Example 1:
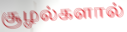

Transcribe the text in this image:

சூழல்களால்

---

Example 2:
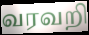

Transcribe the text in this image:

வரவறி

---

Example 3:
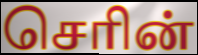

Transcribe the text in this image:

செரின்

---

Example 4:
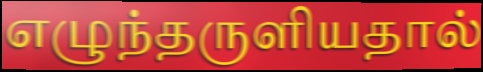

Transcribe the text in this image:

எழுந்தருளியதால்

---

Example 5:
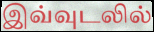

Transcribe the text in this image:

இவ்வுடலில்